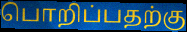
பொறிப்பதற்கு